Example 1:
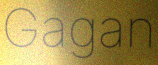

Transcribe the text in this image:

Gagan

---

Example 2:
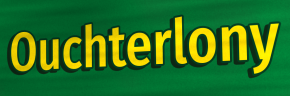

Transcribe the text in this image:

Ouchterlony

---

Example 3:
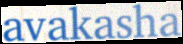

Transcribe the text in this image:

avakasha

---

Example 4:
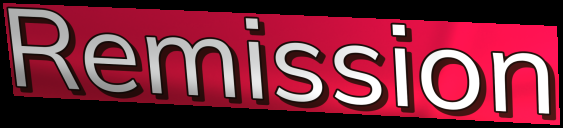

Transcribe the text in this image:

Remission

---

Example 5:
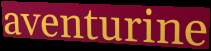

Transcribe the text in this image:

aventurine